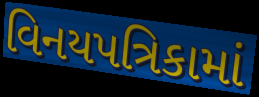
વિનયપત્રિકામાં